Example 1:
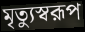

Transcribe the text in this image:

মৃত্যুস্বরূপ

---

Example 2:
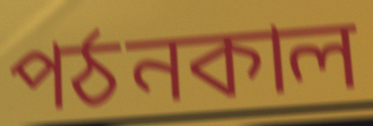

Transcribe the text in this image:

পঠনকাল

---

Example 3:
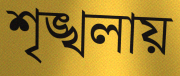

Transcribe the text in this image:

শৃঙ্খলায়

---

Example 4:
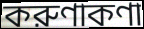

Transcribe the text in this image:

করুণাকণা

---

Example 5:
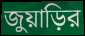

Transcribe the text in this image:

জুয়াড়ির